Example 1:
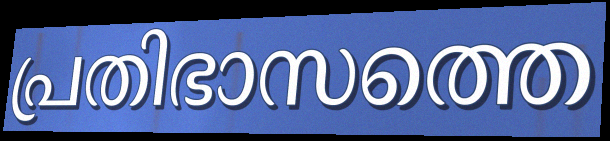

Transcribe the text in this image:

പ്രതിഭാസത്തെ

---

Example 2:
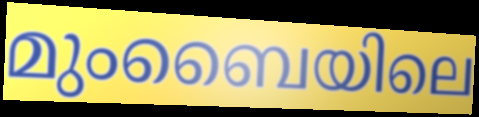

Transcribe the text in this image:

മുംബൈയിലെ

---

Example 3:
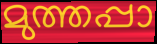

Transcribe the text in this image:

മുത്തപ്പാ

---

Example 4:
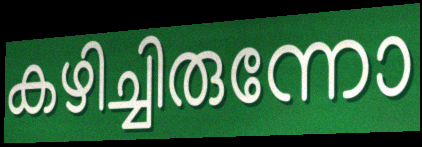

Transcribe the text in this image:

കഴിച്ചിരുന്നോ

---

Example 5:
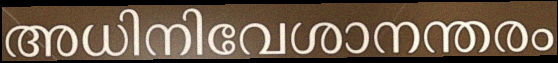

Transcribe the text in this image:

അധിനിവേശാനന്തരം